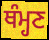
ਥੰਮ੍ਹਣ